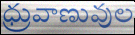
ధ్రువాణువుల